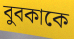
বুবকাকে